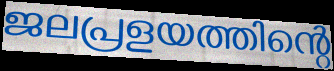
ജലപ്രളയത്തിന്റെ